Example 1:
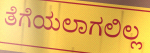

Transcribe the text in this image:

ತೆಗೆಯಲಾಗಲಿಲ್ಲ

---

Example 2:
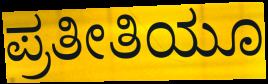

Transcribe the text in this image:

ಪ್ರತೀತಿಯೂ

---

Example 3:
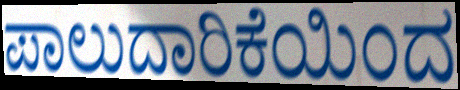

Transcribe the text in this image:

ಪಾಲುದಾರಿಕೆಯಿಂದ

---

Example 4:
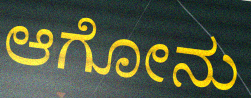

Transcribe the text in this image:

ಆಗೋನು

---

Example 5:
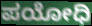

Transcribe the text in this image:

ಪಯೋಧಿ